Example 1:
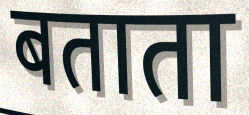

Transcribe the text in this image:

बताता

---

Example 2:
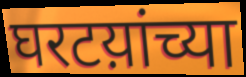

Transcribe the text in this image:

घरटय़ांच्या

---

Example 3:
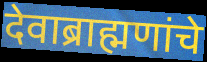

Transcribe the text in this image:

देवाब्राह्मणांचे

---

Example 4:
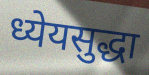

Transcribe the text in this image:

ध्येयसुद्धा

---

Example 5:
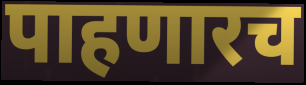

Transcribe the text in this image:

पाहणारच